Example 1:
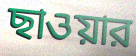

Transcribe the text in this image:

ছাওয়ার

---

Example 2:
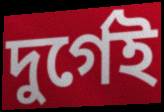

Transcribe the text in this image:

দুর্গেই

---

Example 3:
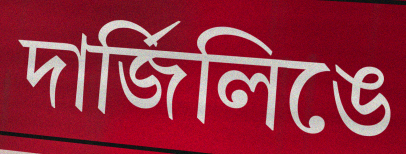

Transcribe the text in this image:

দার্জিলিঙে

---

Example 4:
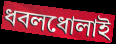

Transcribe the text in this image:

ধবলধোলাই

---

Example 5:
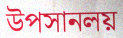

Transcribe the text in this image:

উপসানলয়